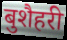
बुशैहरी